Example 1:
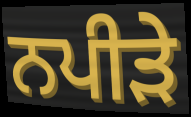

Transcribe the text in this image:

ਨਪੀੜੇ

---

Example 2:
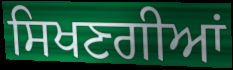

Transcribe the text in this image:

ਸਿਖਣਗੀਆਂ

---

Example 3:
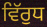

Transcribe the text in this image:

ਵਿੱਰੁਧ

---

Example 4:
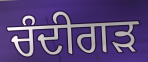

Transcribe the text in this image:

ਚੰਦੀਗੜ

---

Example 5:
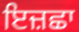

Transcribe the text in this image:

ਇਜ਼ਛਾ